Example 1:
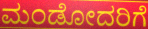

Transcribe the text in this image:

ಮಂಡೋದರಿಗೆ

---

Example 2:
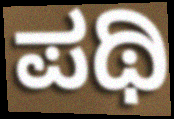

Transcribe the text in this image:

ಪಥಿ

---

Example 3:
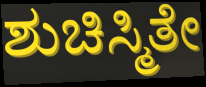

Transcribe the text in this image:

ಶುಚಿಸ್ಮಿತೇ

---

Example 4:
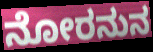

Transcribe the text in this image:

ನೋರನುನ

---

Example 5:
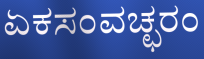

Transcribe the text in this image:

ಏಕಸಂವಚ್ಛರಂ